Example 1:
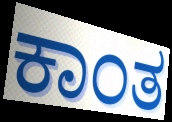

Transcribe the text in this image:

ಕಾಂತ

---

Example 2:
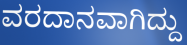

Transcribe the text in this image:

ವರದಾನವಾಗಿದ್ದು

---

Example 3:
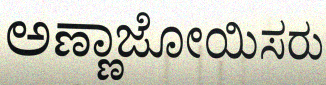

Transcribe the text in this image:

ಅಣ್ಣಾಜೋಯಿಸರು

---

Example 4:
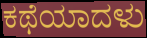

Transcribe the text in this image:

ಕಥೆಯಾದಳು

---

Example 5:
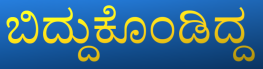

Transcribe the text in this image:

ಬಿದ್ದುಕೊಂಡಿದ್ದ